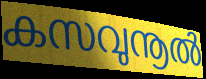
കസവുനൂൽ